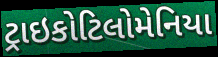
ટ્રાઇકોટિલોમેનિયા